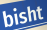
bisht